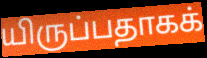
யிருப்பதாகக்